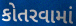
કોતરવામાં